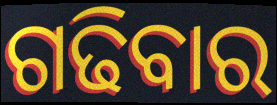
ଗଢିବାର